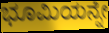
ಭೂಮಿಯನ್ನೇ